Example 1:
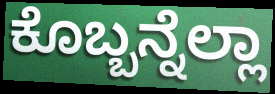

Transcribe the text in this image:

ಕೊಬ್ಬನ್ನೆಲ್ಲಾ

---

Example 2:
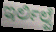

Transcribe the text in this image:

ಇರ್ಲಿಲ್ವೆ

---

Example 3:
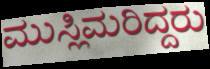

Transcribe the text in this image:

ಮುಸ್ಲಿಮರಿದ್ದರು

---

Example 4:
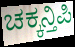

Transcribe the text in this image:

ಚಕ್ಕನ್ತಿಪಿ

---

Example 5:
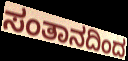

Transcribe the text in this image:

ಸಂತಾನದಿಂದ